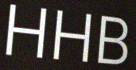
HHB